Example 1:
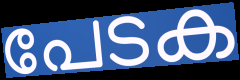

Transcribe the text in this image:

പേടക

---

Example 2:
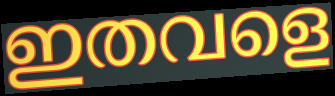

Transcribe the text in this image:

ഇതവളെ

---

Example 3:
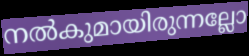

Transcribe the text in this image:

നൽകുമായിരുന്നല്ലോ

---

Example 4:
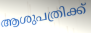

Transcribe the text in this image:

ആശുപത്രിക്ക്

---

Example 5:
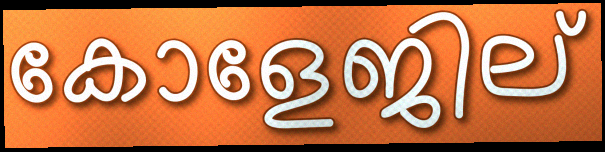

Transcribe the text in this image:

കോളേജില്